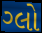
ગ્લો